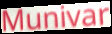
Munivar